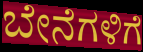
ಬೇನೆಗಳಿಗೆ